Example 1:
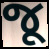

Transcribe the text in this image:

જૂ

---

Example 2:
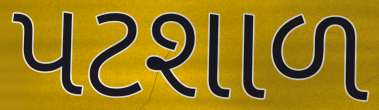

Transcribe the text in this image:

પટશાળ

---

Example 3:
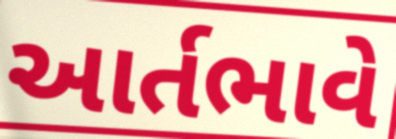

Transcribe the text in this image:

આર્તભાવે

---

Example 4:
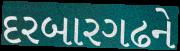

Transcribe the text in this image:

દરબારગઢને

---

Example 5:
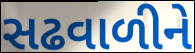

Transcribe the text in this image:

સઢવાળીને